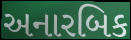
અનારબિક